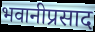
भवानीप्रसाद